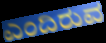
ಎಂದಿರುವ